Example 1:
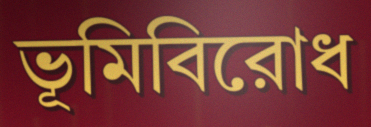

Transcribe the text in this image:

ভূমিবিরোধ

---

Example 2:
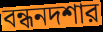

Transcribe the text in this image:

বন্ধনদশার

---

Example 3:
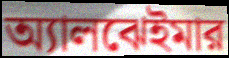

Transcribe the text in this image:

অ্যালঝেইমার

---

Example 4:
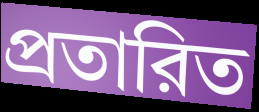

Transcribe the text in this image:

প্রতারিত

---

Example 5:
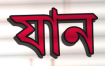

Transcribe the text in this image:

যান